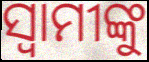
ସ୍ବାମୀଙ୍କୁ